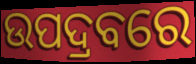
ଉପଦ୍ରବରେ